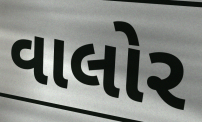
વાલોર